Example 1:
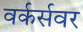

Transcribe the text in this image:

वर्कर्सवर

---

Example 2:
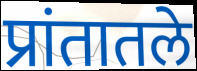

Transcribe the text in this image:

प्रांतातले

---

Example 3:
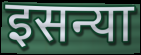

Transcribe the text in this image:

इसन्या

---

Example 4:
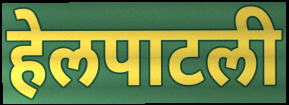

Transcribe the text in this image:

हेलपाटली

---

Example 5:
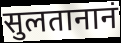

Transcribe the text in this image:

सुलतानानं